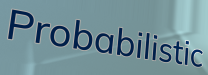
Probabilistic